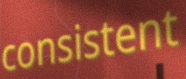
consistent